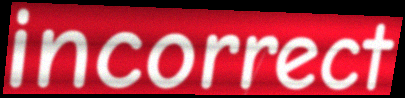
incorrect